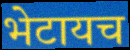
भेटायच